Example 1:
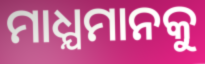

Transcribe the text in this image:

ମାଧ୍ଯମାନକୁ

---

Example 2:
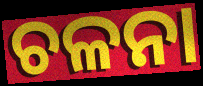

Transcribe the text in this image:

ଚଳନା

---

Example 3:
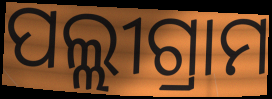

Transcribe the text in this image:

ପଲ୍ଲୀଗ୍ରାମ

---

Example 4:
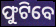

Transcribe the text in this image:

ଫୁଟିବେ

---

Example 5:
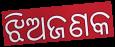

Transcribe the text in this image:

ଝିଅଜଣକ